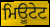
ਮਿਊਟੇਟ